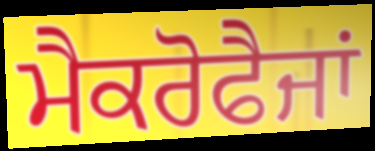
ਮੈਕਰੋਫੈਜਾਂ